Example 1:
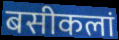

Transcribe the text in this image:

बसीकलां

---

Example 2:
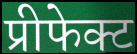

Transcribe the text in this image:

प्रीफेक्ट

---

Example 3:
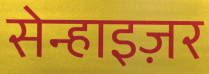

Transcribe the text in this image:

सेन्हाइज़र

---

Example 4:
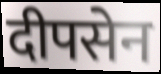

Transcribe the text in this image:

दीपसेन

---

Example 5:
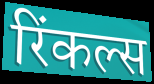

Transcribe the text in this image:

रिंकल्स